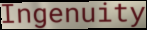
Ingenuity